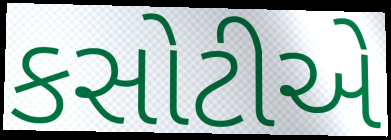
કસોટીએ